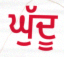
ਘੁੱਦੂ